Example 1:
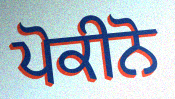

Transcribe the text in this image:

ਪੋਕੀਨੋ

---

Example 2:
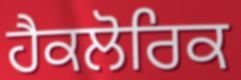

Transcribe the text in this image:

ਹੈਕਲੋਰਿਕ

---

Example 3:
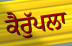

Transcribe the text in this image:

ਕੈਰੁੱਪਲਾ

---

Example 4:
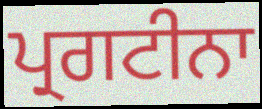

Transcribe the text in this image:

ਪ੍ਰਗਟੀਨਾ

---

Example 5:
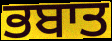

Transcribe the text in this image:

ਭਬਾਤ